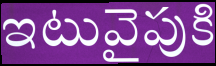
ఇటువైపుకి